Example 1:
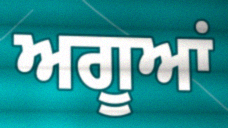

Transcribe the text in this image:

ਅਗੂਆਂ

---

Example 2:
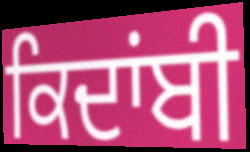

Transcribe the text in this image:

ਕਿਦਾਂਬੀ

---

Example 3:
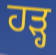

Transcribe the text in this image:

ਹੜ੍ਹ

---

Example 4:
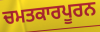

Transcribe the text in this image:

ਚਮਤਕਾਰਪੂਰਨ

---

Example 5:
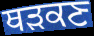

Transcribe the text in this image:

ਥੜਕਣ